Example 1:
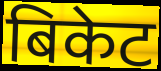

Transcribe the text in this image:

बिकेट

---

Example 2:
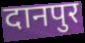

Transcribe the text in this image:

दानपुर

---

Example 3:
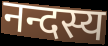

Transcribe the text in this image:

नन्दस्य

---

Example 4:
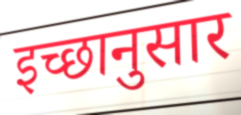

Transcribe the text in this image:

इच्‍छानुसार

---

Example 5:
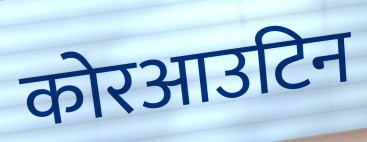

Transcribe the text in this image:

कोरआउटिन